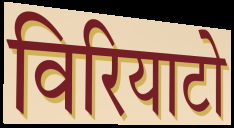
विरियाटो